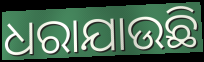
ଧରାଯାଉଛି